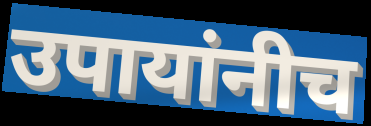
उपायांनीच